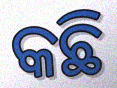
କଛି